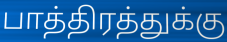
பாத்திரத்துக்கு